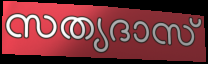
സത്യദാസ്